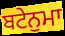
ਬਟੇਨੁਮਾ